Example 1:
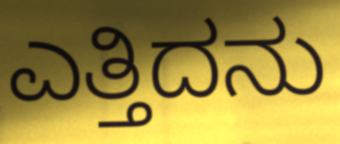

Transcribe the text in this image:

ಎತ್ತಿದನು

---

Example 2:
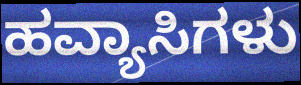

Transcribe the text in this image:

ಹವ್ಯಾಸಿಗಳು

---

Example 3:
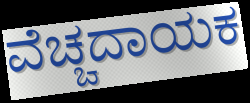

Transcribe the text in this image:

ವೆಚ್ಚದಾಯಕ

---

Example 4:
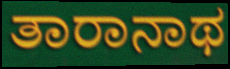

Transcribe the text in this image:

ತಾರಾನಾಥ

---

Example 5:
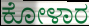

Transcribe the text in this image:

ಕೋಳಾರ